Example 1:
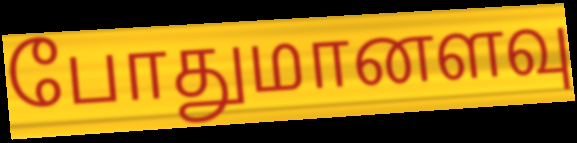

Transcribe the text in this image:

போதுமானளவு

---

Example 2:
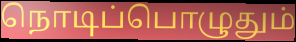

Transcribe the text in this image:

நொடிப்பொழுதும்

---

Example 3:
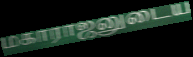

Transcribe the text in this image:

மகாராஜனுடைய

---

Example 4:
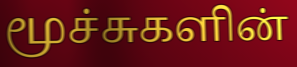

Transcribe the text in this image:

மூச்சுகளின்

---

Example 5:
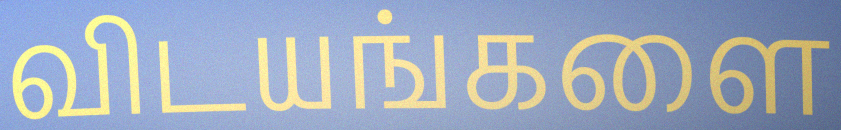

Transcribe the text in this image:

விடயங்களை